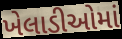
ખેલાડીઓમાં